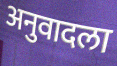
अनुवादला